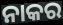
ନାକର